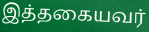
இத்தகையவர்